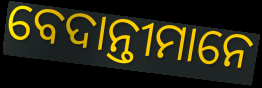
ବେଦାନ୍ତୀମାନେ